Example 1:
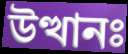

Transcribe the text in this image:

উত্থানঃ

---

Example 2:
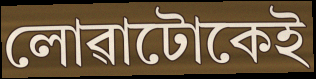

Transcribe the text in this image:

লোৱাটোকেই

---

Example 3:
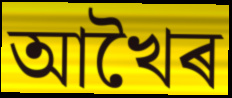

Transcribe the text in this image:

আখৈৰ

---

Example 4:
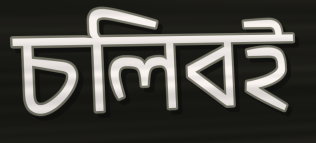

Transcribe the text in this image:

চলিবই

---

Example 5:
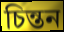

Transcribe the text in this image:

চিন্তন